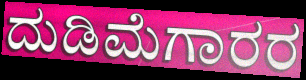
ದುಡಿಮೆಗಾರರ